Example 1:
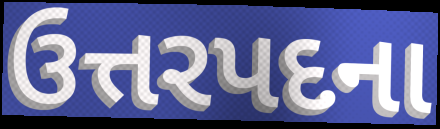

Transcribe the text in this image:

ઉત્તરપદના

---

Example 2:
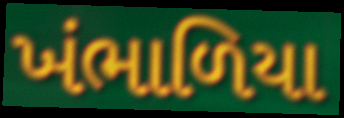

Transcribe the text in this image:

ખંભાળિયા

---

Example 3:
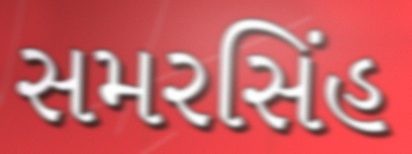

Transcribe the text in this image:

સમરસિંહ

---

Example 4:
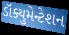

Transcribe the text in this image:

ડૉક્યુમેન્ટેશન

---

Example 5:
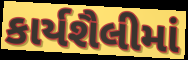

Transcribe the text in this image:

કાર્યશૈલીમાં